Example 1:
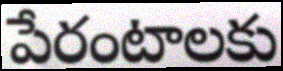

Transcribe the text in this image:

పేరంటాలకు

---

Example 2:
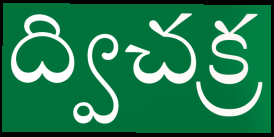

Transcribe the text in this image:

ద్విచక్ర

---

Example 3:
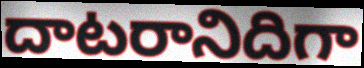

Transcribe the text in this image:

దాటరానిదిగా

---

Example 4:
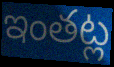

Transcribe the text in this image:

ఇంతట్ల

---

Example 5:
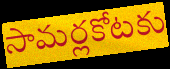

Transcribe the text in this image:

సామర్లకోటకు